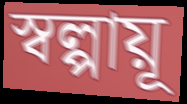
স্বল্পায়ূ